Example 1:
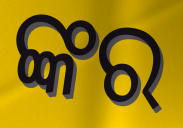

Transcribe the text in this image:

ଙ୍କର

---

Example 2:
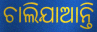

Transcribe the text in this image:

ଚାଲିଯାଆନ୍ତି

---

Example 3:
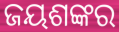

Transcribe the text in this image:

ଜୟଶଙ୍କର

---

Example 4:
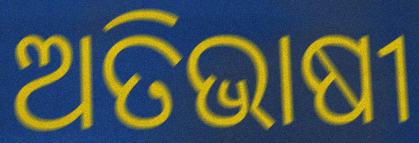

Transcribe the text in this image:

ଅତିଭାଷୀ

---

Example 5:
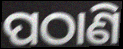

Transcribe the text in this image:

ପଠାଣି